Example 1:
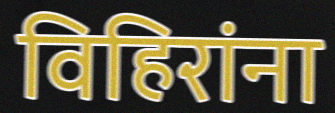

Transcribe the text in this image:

विहिरांना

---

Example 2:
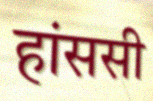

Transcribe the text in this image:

हांससी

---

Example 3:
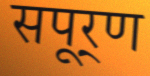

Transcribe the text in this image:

सपूर्ण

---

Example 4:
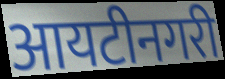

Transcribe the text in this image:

आयटीनगरी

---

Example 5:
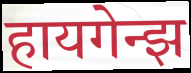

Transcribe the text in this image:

हायगेन्झ